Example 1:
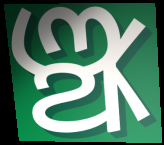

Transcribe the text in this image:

ଞ୍ଝ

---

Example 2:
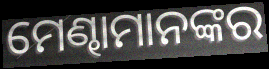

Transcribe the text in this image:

ମେଣ୍ଢାମାନଙ୍କର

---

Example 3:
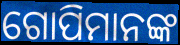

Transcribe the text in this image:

ଗୋପିମାନଙ୍କ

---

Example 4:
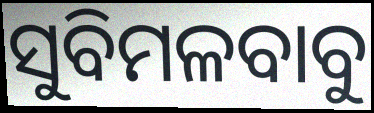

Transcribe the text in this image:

ସୁବିମଳବାବୁ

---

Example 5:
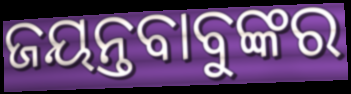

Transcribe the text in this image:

ଜୟନ୍ତବାବୁଙ୍କର